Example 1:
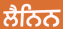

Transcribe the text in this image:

ਲੈਨਿਨ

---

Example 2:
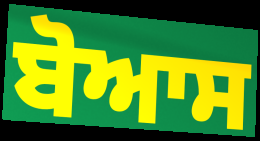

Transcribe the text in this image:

ਬੋਆਸ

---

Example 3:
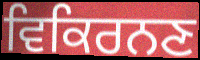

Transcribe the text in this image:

ਵਿਕਿਰਨਣ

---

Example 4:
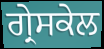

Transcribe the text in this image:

ਗ੍ਰੇਸਕੇਲ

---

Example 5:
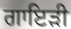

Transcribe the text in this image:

ਗਾਇੜੀ